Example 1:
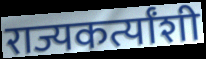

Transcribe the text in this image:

राज्यकर्त्यांशी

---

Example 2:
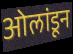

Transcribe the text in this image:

ओलांडून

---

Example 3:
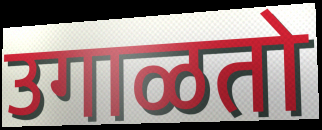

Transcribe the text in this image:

उगाळतो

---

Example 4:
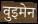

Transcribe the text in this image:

वुइमेन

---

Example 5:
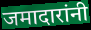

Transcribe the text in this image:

जमादारांनी